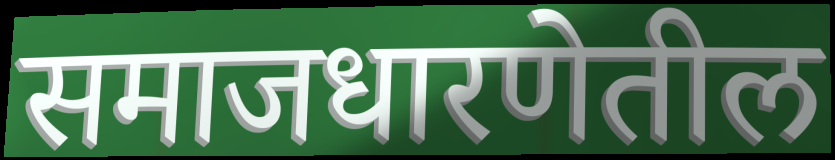
समाजधारणेतील